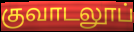
குவாடலூப்